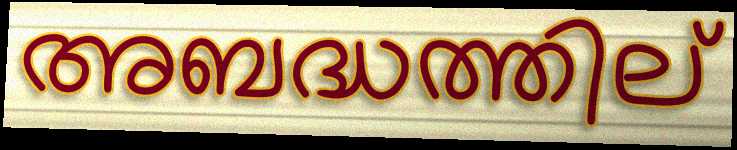
അബദ്ധത്തില്